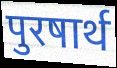
पुरषार्थ